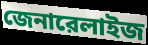
জেনারেলাইজ